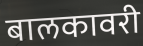
बालकावरी